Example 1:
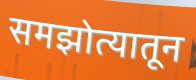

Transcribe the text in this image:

समझोत्यातून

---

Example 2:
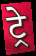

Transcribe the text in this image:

ट्रे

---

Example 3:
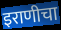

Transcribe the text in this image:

इराणीचा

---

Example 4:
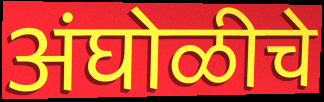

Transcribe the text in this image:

अंघोळीचे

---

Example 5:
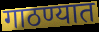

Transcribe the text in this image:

गाठण्यात